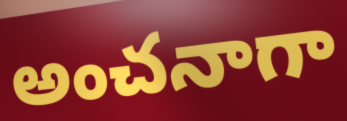
అంచనాగా